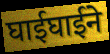
घाईघाईने